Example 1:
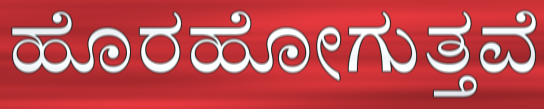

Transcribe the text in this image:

ಹೊರಹೋಗುತ್ತವೆ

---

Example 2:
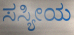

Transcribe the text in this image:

ಸಸ್ಯೀಯ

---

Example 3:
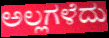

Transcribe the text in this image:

ಅಲ್ಲಗಳೆದು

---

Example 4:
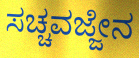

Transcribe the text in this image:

ಸಚ್ಚವಜ್ಜೇನ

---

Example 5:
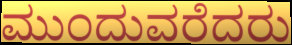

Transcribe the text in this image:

ಮುಂದುವರೆದರು